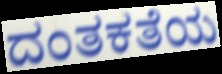
ದಂತಕತೆಯ